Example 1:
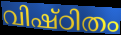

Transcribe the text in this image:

വിഷ്ഠിതം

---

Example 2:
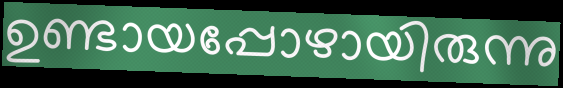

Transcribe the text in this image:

ഉണ്ടായപ്പോഴായിരുന്നു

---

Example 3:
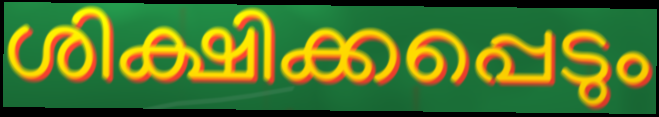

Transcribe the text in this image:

ശിക്ഷിക്കപ്പെടും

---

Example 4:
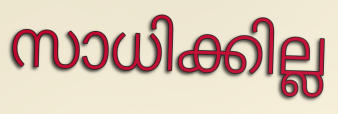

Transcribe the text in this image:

സാധിക്കില്ല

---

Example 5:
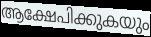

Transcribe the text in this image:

ആക്ഷേപിക്കുകയും